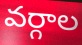
వర్గాల